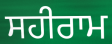
ਸਹੀਰਾਮ